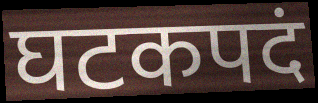
घटकपदं